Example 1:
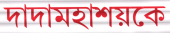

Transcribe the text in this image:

দাদামহাশয়কে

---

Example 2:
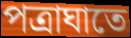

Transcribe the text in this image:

পত্রাঘাতে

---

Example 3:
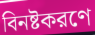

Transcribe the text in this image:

বিনষ্টকরণে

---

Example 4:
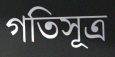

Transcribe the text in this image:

গতিসূত্র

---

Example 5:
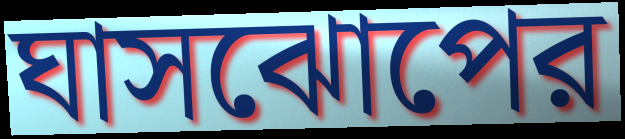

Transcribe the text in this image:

ঘাসঝোপের